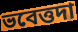
ভবেত্তদা